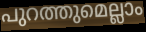
പുറത്തുമെല്ലാം